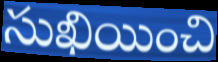
సుఖియించి